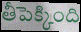
తీపెక్కింది